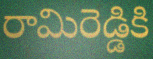
రామిరెడ్డికి